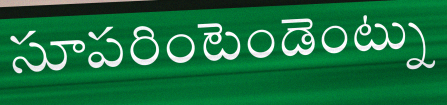
సూపరింటెండెంట్ను